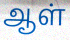
ஆள்